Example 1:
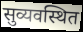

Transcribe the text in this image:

सुव्यवस्थित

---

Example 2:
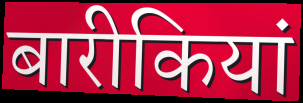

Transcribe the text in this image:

बारीकियां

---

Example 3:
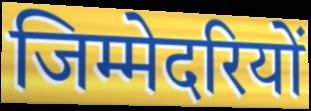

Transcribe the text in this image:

जिम्मेदरियों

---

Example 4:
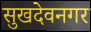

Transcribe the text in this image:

सुखदेवनगर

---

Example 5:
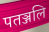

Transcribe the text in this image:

पतञ्जलि